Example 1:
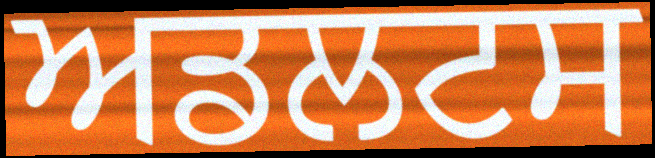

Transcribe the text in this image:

ਅਡਲਟਸ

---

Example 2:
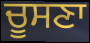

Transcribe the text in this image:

ਚੂਸਣਾ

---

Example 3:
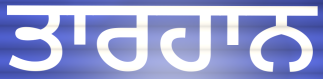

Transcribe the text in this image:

ਤਾਰਹਾਨ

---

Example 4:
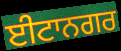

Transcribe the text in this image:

ਈਟਾਨਗਰ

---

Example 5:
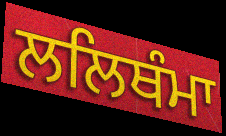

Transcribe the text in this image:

ਲਲਿਥੰਮਾ